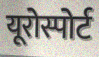
यूरोस्पोर्ट